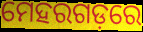
ମେହରଗଡ଼ରେ